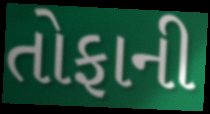
તોફાની